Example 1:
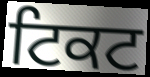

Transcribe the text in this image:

ਟਿਕਟ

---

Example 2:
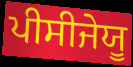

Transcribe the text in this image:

ਪੀਸੀਜੇਯੂ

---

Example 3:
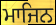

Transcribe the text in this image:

ਮਾਜਿਨ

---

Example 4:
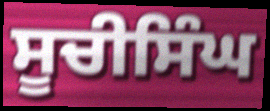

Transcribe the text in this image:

ਸੂਚੀਸਿੰਘ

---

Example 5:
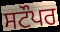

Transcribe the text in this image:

ਸਟੌਪਰ